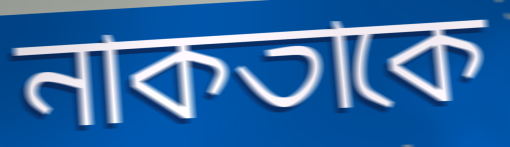
নাকতাকে